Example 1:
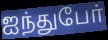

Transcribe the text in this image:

ஐந்துபேர்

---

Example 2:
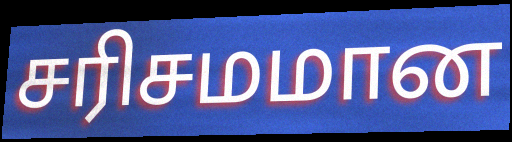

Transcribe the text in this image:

சரிசமமான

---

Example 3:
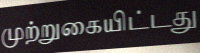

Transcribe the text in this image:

முற்றுகையிட்டது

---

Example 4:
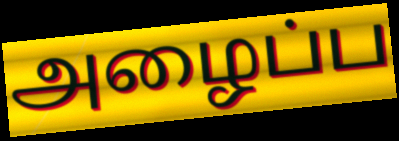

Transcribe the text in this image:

அழைப்ப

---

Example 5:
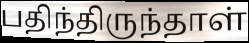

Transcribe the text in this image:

பதிந்திருந்தாள்